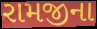
રામજીના